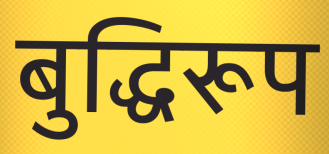
बुद्धिरूप